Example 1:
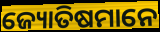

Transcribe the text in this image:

ଜ୍ୟୋତିଷମାନେ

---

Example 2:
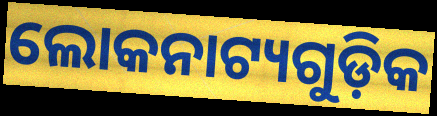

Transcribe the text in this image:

ଲୋକନାଟ୍ୟଗୁଡ଼ିକ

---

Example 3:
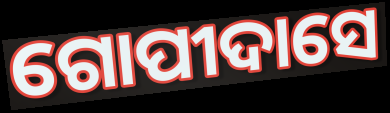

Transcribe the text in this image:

ଗୋପୀଦାସେ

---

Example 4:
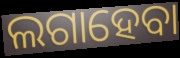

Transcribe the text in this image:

ଲଗାହେବା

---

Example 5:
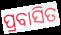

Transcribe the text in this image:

ପ୍ରବାସିତ